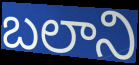
బలాని